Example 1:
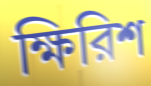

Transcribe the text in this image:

ক্ষিরিশ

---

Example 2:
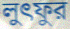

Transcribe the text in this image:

লুৎফুর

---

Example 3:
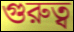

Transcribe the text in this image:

গুরুত্ব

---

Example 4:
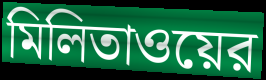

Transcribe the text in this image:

মিলিতাওয়ের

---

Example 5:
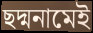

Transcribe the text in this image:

ছদ্মনামেই